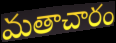
మతాచారం